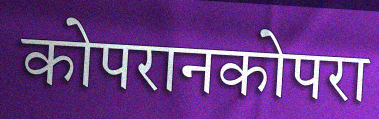
कोपरानकोपरा